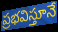
ప్రభవిస్తూనే